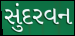
સુંદરવન